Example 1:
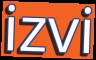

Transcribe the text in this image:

izvi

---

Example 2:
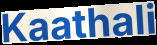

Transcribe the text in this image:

Kaathali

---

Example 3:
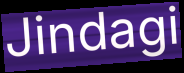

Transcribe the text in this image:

Jindagi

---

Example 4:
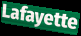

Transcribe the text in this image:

Lafayette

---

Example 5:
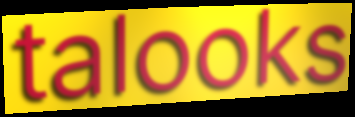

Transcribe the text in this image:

talooks